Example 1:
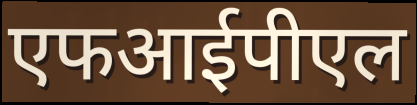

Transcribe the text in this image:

एफआईपीएल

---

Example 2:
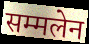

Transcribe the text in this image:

सम्मलेन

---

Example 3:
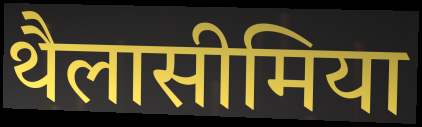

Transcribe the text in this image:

थैलासीमिया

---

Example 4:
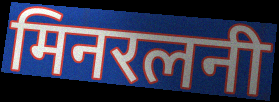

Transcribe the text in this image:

मिनरलनी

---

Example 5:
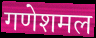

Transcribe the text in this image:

गणेशमल